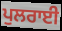
ਪੁਲਰਾਈ